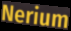
Nerium